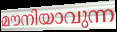
മൗനിയാവുന്ന